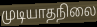
முடியாதநிலை